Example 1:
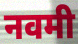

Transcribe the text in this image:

नवमी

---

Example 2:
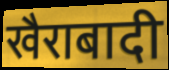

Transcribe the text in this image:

खैराबादी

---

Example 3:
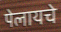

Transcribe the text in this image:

पेलायचे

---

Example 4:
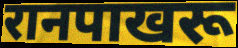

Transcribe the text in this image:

रानपाखरू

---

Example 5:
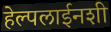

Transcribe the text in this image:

हेल्पलाईनशी